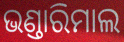
ଭଣ୍ଡାରିମାଲ